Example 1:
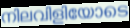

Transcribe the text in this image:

നിലവിളിയോടെ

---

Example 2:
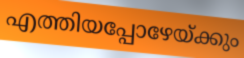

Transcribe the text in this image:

എത്തിയപ്പോഴേയ്ക്കും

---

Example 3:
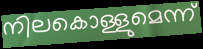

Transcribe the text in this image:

നിലകൊള്ളുമെന്ന്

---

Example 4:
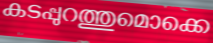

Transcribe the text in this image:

കടപ്പുറത്തുമൊക്കെ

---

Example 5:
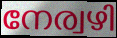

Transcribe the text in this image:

നേര്വഴി